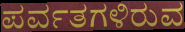
ಪರ್ವತಗಳಿರುವ